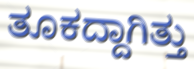
ತೂಕದ್ದಾಗಿತ್ತು